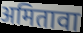
अमितावा